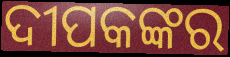
ଦୀପକଙ୍କର